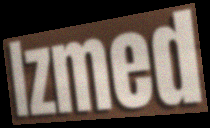
Izmed